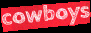
cowboys